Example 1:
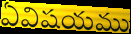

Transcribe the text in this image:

ఏవిషయము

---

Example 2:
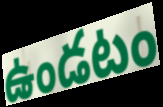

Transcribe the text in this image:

ఉండటం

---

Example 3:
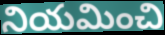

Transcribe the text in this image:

నియమించి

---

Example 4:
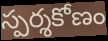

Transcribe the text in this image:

స్పర్శకోణం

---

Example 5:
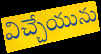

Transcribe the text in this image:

విచ్చేయును